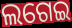
ଲଗେଇ